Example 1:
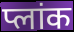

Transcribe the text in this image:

प्लांक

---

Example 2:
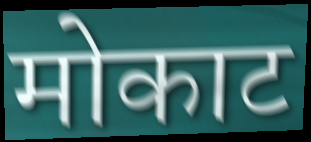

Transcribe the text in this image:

मोकाट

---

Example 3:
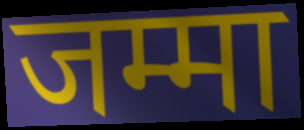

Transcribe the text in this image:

जम्मा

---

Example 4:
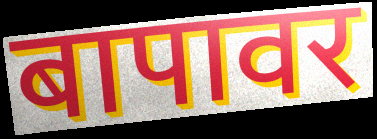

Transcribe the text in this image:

बापावर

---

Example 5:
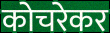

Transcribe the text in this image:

कोचरेकर